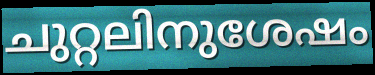
ചുറ്റലിനുശേഷം